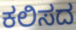
ಕಲಿಸದ